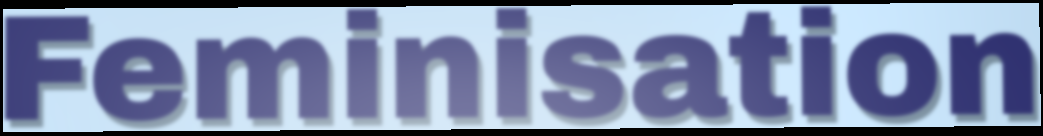
Feminisation